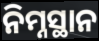
ନିମ୍ନସ୍ଥାନ